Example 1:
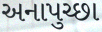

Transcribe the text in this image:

અનાપુચ્છા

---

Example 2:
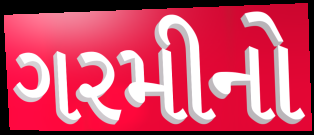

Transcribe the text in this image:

ગરમીનો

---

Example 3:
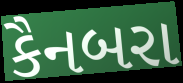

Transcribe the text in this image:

કૈનબરા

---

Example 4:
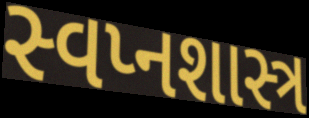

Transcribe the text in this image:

સ્વપ્નશાસ્ત્ર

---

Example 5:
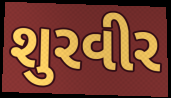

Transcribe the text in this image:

શુરવીર